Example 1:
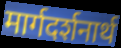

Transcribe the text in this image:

मार्गदर्शनार्थ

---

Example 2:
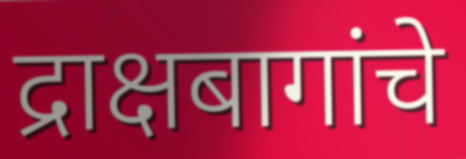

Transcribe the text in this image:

द्राक्षबागांचे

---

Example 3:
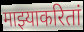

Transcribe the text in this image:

माझ्याकरितां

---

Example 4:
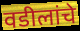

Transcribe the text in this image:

वडीलांचे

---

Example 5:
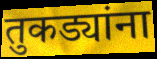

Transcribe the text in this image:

तुकड्यांना